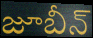
జూబీన్